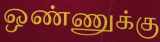
ஒண்ணுக்கு